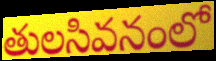
తులసివనంలో